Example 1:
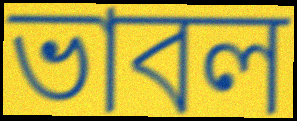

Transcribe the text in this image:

ভাবল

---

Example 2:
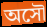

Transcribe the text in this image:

অসৌ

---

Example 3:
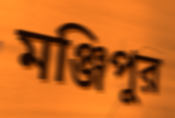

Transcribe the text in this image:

মঞ্জিপুর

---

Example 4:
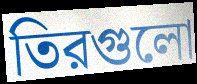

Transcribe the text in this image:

তিরগুলো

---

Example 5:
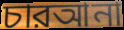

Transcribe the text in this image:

চারআনা